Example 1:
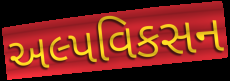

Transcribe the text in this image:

અલ્પવિકસન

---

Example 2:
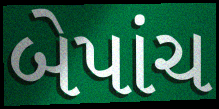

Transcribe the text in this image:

બેપાંચ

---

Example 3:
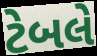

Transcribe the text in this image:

ટેબલે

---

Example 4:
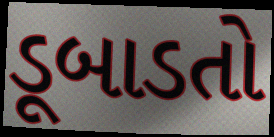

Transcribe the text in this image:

ડૂબાડતો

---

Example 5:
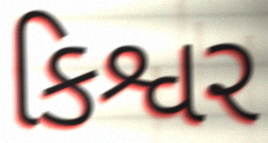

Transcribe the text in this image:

કિશ્વર